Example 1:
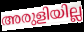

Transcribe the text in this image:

അരുളിയില്ല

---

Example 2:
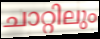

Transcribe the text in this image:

ചാറ്റിലും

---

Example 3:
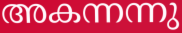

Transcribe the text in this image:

അകന്നന്നു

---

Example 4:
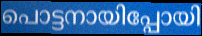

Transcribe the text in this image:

പൊട്ടനായിപ്പോയി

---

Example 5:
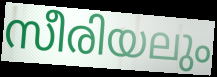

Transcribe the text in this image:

സീരിയലും